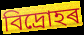
বিদ্ৰোহৰ